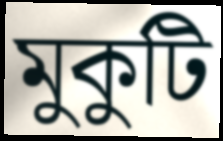
মুকুটি